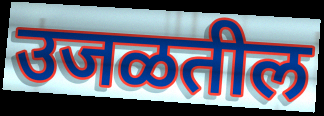
उजळतील